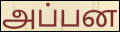
அப்பன